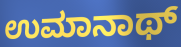
ಉಮಾನಾಥ್